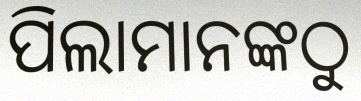
ପିଲାମାନଙ୍କଠୁ